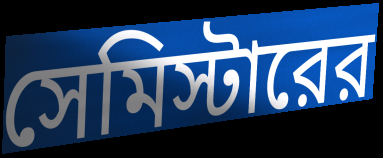
সেমিস্টারের